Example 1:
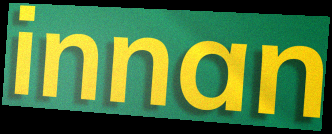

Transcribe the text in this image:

innan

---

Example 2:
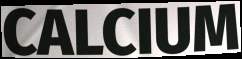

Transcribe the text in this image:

CALCIUM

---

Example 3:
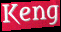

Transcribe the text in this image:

Keng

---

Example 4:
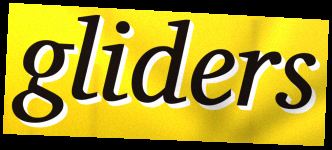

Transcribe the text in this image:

gliders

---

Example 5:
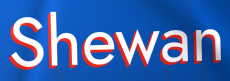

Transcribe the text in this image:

Shewan